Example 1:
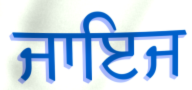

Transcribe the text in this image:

ਜਾਇਜ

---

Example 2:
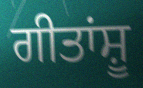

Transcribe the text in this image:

ਗੀਤਾਂਸ਼ੂ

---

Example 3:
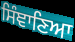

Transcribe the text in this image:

ਸਿੰਞਾਣਿਆ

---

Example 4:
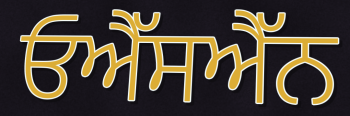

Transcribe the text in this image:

ਓਐੱਸਐੱਨ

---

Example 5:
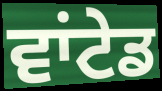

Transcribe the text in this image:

ਵਾਂਟੇਡ